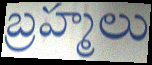
బ్రహ్మలు